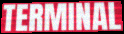
TERMINAL